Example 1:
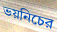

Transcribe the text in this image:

ভয়নিচের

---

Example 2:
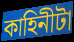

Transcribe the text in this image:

কাহিনীটা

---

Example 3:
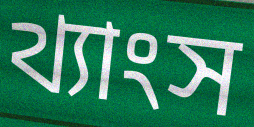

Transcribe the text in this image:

থ্যাংস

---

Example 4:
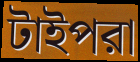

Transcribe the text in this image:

টাইপরা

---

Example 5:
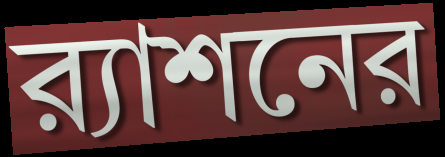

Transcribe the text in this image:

র‍্যাশনের